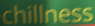
chillness